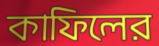
কাফিলের